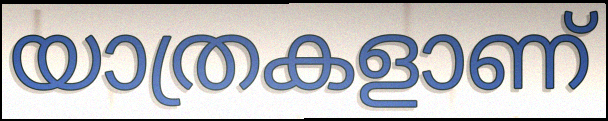
യാത്രകളാണ്